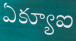
ఏక్యూఐ